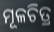
ମୂଳଚିତ୍ର